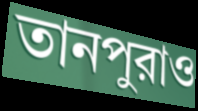
তানপুরাও